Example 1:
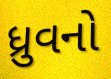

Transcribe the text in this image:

ધ્રુવનો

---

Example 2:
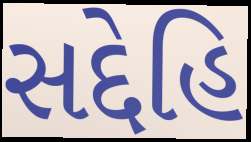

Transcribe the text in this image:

સદ્દેહિ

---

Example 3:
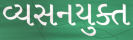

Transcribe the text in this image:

વ્યસનયુક્ત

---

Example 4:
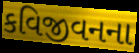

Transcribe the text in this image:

કવિજીવનના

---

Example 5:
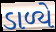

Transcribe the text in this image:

ડાળ્યે